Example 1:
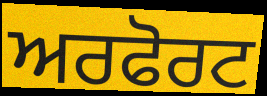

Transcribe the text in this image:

ਅਰਫੋਰਟ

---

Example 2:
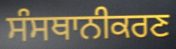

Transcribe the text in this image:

ਸੰਸਥਾਨੀਕਰਣ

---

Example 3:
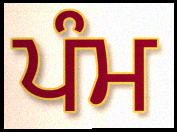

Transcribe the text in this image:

ਪੰਮ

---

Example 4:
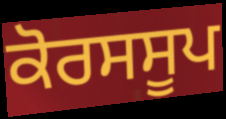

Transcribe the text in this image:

ਕੋਰਸਸੂਪ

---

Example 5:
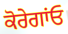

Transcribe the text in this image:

ਕੋਰੇਗਾਂਓ